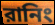
রানিং